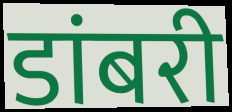
डांबरी